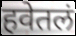
हवेतलं